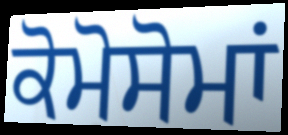
ਕੋਮੋਸੋਮਾਂ